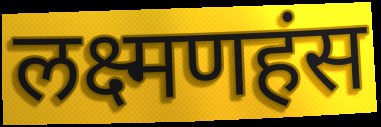
लक्ष्मणहंस